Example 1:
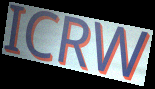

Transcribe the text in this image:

ICRW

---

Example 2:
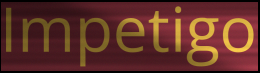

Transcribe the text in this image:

Impetigo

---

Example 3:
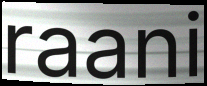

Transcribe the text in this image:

raani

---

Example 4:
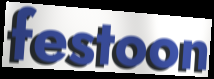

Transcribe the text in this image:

festoon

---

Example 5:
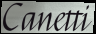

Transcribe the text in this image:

Canetti